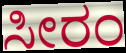
ಸೀರಂ